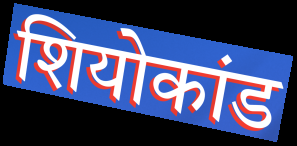
शियोकांड